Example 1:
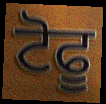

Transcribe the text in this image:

ਟੋਫੂ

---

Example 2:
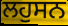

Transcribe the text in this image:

ਲਹੁਸਨ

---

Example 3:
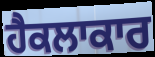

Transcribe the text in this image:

ਹੈਕਲਾਕਾਰ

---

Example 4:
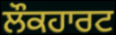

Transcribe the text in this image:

ਲੌਕਹਾਰਟ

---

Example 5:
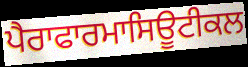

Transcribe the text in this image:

ਪੈਰਾਫਾਰਮਾਸਿਊਟੀਕਲ